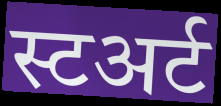
स्टअर्ट